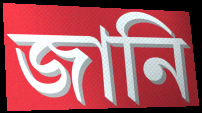
জানি